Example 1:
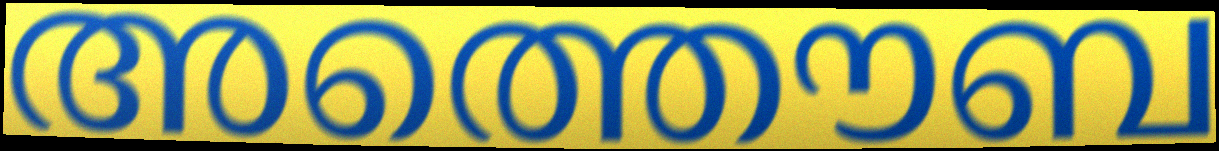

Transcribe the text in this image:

അത്തൌബ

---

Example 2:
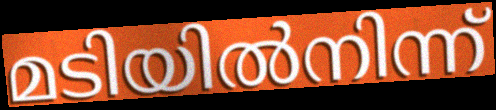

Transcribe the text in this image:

മടിയിൽനിന്ന്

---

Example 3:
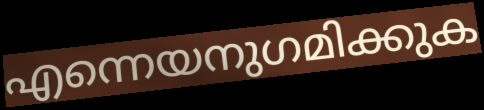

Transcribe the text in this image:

എന്നെയനുഗമിക്കുക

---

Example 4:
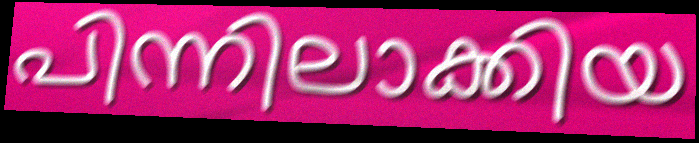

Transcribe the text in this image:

പിന്നിലാക്കിയ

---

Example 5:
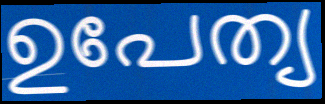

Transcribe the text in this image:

ഉപേത്യ